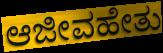
ಆಜೀವಹೇತು